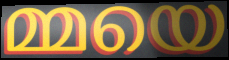
മ്മയെ